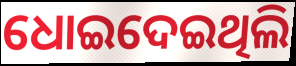
ଧୋଇଦେଇଥିଲି